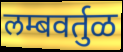
लम्बवर्तुळ